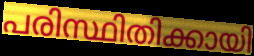
പരിസ്ഥിതിക്കായി